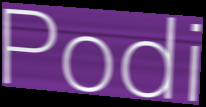
Podi